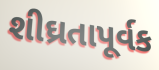
શીઘ્રતાપૂર્વક